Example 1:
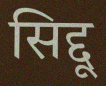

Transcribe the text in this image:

सिद्दू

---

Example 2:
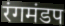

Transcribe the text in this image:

रंगमंडप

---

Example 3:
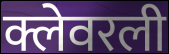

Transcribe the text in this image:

क्लेवरली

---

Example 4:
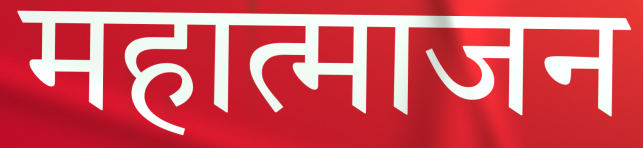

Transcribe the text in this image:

महात्माजन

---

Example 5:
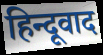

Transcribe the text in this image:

हिन्दूवाद